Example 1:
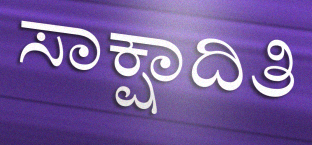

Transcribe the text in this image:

ಸಾಕ್ಷಾದಿತಿ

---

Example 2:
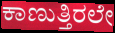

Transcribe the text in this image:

ಕಾಣುತ್ತಿರಲೇ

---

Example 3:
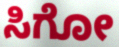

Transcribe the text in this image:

ಸಿಗೋ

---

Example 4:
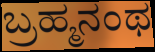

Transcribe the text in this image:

ಬ್ರಹ್ಮನಂಥ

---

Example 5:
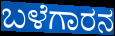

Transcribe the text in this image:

ಬಳೆಗಾರನ